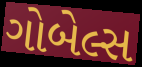
ગોબેલ્સ